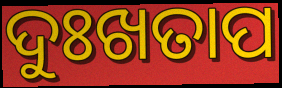
ଦୁଃଖତାପ